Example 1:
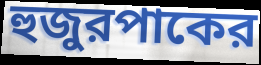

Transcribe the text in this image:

হুজুরপাকের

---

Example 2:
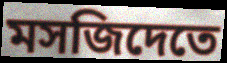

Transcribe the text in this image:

মসজিদেতে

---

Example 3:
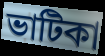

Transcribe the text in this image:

ভাটিকা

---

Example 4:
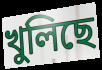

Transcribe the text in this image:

খুলিছে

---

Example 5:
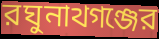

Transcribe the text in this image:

রঘুনাথগঞ্জের